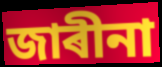
জাৰীনা